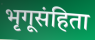
भृगूसंहिता